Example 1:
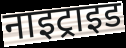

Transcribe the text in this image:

नाइट्राइड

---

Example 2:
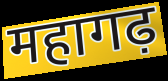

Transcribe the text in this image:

महागढ़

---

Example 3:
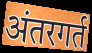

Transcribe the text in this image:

अंतरगर्त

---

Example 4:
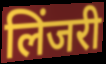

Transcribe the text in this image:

लिंजरी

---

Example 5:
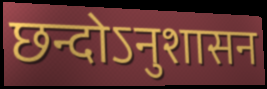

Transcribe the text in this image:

छन्दोऽनुशासन